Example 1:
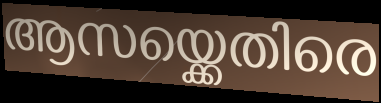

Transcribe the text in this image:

ആസയ്ക്കെതിരെ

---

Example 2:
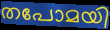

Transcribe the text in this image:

തപോമയി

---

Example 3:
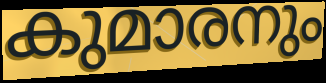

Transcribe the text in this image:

കുമാരനും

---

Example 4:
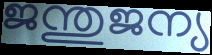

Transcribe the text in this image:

ജന്തുജന്യ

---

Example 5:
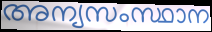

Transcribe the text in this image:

അന്യസംസ്ഥാന